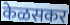
केळसकर